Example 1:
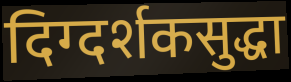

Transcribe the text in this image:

दिग्दर्शकसुद्धा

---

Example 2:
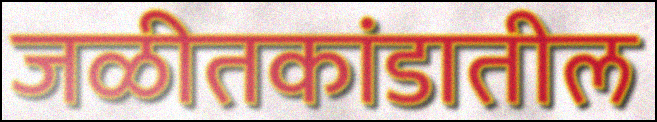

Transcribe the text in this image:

जळीतकांडातील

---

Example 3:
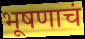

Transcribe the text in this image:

भूषणाचं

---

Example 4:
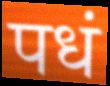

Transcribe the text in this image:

पधं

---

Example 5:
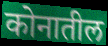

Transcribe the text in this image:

कोनातील